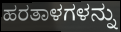
ಹರತಾಳಗಳನ್ನು